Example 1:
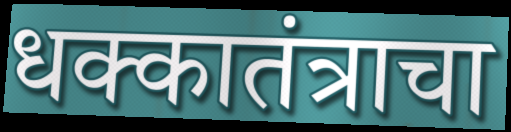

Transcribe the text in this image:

धक्कातंत्राचा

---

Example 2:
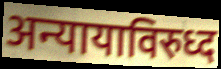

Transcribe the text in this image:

अन्यायाविरुध्द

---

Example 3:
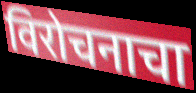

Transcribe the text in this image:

विरोचनाचा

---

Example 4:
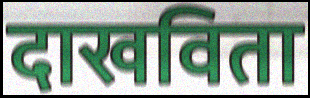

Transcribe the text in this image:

दाखविता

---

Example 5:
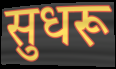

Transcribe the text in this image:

सुधरू